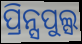
ପ୍ରିନ୍ସପୁଲ୍ସ